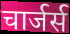
चार्जर्स